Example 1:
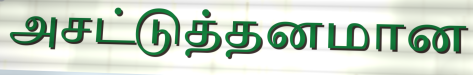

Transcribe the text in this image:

அசட்டுத்தனமான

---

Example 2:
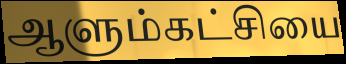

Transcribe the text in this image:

ஆளும்கட்சியை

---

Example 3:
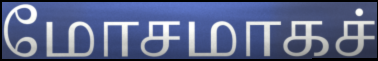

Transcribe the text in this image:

மோசமாகச்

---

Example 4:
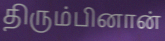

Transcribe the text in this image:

திரும்பினான்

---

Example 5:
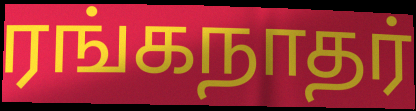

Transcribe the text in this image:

ரங்கநாதர்